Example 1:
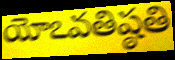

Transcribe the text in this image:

యోఽవతిష్ఠతి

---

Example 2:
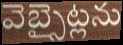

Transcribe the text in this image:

వెబ్సైట్లను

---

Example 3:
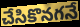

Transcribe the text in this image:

చేసికొనగనే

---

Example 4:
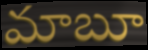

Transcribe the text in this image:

మాబూ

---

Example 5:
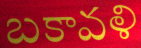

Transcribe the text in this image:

బకావళి